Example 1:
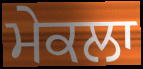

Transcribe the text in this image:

ਮੇਕਲਾ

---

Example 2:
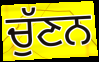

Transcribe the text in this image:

ਚੁੱਣਨ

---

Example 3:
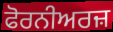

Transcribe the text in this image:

ਫੋਰਨੀਅਰਜ਼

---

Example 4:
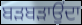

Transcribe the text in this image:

ਬੜਬੜਾਉਂਦਾ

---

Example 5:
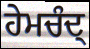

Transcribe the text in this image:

ਹੇਮਚੰਦ੍